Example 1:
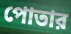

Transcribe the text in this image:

পোতার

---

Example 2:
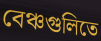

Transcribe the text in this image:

বেঞ্চগুলিতে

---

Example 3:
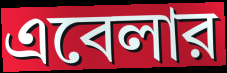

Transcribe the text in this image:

এবেলার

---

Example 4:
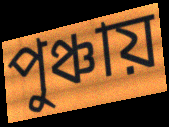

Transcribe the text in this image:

পুঞ্চায়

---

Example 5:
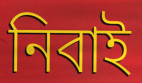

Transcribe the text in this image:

নিবাই